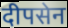
दीपसेन